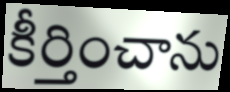
కీర్తించాను